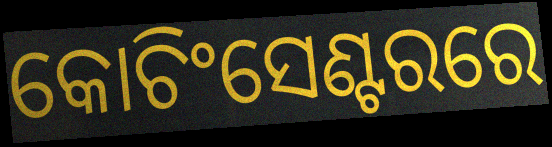
କୋଚିଂସେଣ୍ଟରରେ